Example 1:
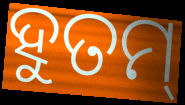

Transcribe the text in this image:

ହୁତମ୍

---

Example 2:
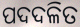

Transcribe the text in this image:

ପଦଦଳିତ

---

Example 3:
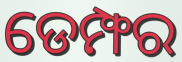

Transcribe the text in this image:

ଡେମ୍ଫର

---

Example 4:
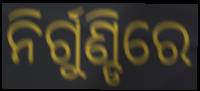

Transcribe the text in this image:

ନିର୍ଗୁଣ୍ଡିରେ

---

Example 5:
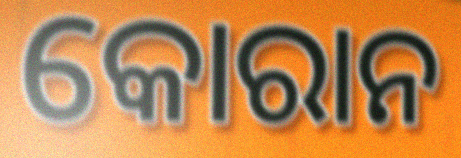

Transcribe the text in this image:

କୋରାନ